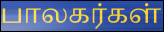
பாலகர்கள்